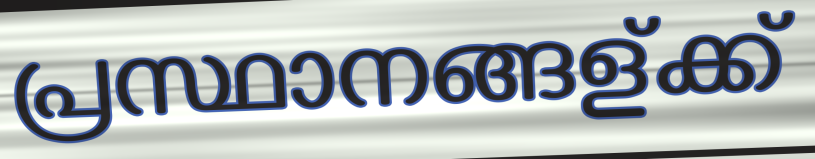
പ്രസ്ഥാനങ്ങള്ക്ക്